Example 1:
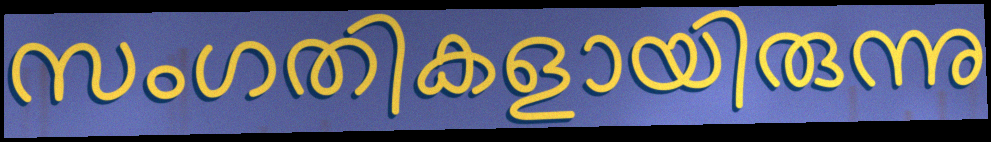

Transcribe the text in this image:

സംഗതികളായിരുന്നു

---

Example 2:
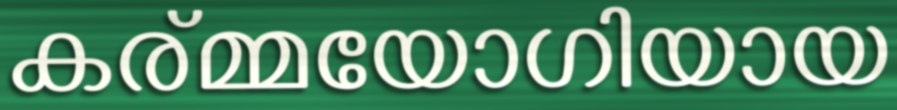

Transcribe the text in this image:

കര്മ്മയോഗിയായ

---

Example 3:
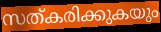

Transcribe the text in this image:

സത്കരിക്കുകയും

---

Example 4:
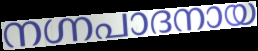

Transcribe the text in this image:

നഗ്നപാദനായ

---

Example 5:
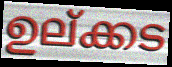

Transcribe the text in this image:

ഉല്ക്കട